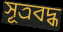
সূত্রবদ্ধ